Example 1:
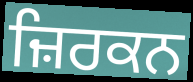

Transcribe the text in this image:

ਜ਼ਿਰਕਨ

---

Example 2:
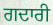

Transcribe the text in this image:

ਗਦਾਰੀ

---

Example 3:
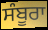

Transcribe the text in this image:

ਸੰਬੂਰਾ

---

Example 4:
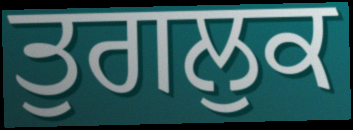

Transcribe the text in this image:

ਤੁਗਲੁਕ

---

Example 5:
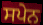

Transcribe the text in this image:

ਸਪੇਨ